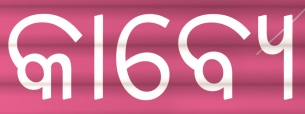
କାବ୍ୟେ